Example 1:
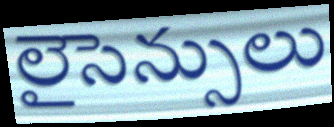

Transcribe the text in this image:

లైసెన్సులు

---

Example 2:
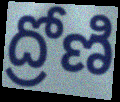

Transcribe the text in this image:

ద్రోణి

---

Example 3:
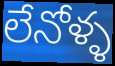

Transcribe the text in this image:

లేనోళ్ళ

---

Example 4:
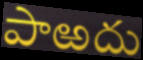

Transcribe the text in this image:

పాఱదు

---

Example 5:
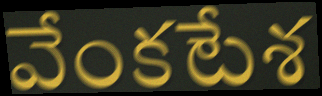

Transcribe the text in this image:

వేంకటేశ